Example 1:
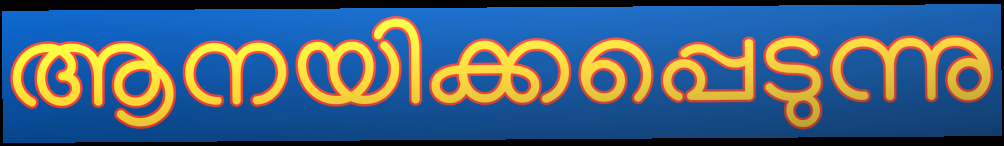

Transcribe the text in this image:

ആനയിക്കപ്പെടുന്നു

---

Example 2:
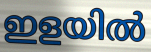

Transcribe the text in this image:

ഇളയിൽ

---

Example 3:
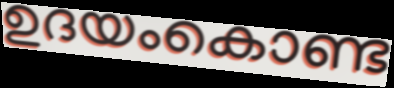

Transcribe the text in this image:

ഉദയംകൊണ്ട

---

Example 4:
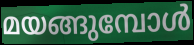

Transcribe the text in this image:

മയങ്ങുമ്പോൾ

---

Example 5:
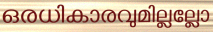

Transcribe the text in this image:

ഒരധികാരവുമില്ലല്ലോ